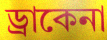
ড্রাকেনা